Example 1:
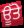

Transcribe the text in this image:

ਊੱਤੇ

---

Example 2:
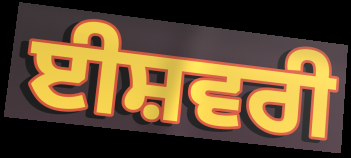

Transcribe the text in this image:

ਈਸ਼ਵਰੀ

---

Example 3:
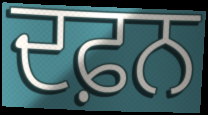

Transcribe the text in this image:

ਦਫ਼ਨ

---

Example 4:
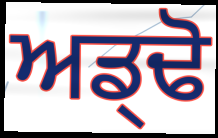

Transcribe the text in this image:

ਅਡ੍ਢੋ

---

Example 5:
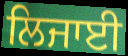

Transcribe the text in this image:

ਲਿਜਾਈ